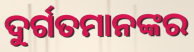
ଦୁର୍ଗତମାନଙ୍କର